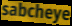
sabcheye